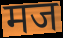
मज